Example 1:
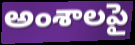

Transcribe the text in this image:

అంశాలపై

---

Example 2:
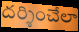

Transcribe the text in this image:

దర్శించేలా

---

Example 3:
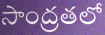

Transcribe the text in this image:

సాంద్రతలో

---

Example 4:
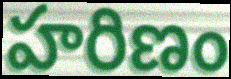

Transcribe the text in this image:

హరిణం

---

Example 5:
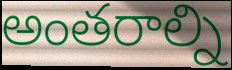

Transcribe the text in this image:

అంతరాల్ని